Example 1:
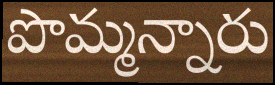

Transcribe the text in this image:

పొమ్మన్నారు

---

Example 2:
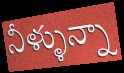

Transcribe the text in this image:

నీళ్ళున్నా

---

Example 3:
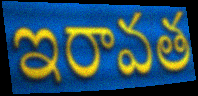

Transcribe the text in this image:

ఇరావత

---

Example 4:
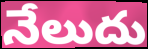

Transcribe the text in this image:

నేలుదు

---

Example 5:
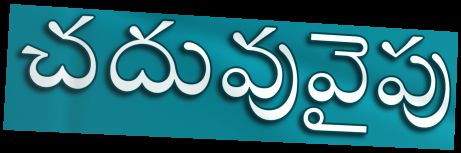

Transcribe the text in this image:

చదువువైపు